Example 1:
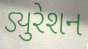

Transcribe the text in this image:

ડ્યુરેશન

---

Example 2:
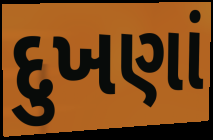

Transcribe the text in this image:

દુખણાં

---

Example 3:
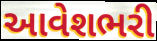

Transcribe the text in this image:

આવેશભરી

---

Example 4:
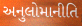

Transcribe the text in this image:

અનુલોમાનીતિ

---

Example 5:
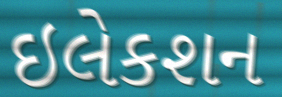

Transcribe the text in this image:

ઇલેકશન